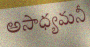
అసాధ్యమనీ